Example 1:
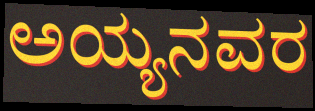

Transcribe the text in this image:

ಅಯ್ಯನವರ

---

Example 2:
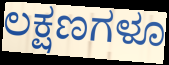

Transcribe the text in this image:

ಲಕ್ಷಣಗಳೂ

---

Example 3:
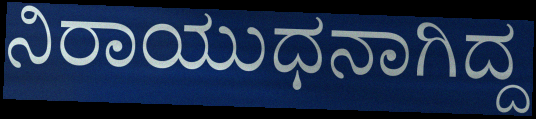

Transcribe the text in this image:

ನಿರಾಯುಧನಾಗಿದ್ದ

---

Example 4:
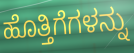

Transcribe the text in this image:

ಹೊತ್ತಿಗೆಗಳನ್ನು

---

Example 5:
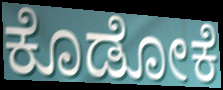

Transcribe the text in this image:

ಕೊಡೋಕೆ